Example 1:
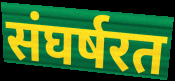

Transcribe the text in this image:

संघर्षरत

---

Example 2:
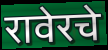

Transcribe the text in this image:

रावेरचे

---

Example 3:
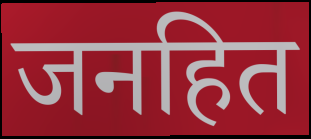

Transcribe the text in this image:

जनहित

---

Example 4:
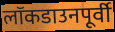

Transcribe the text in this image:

लॉकडाउनपूर्वी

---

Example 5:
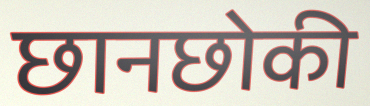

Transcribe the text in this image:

छानछोकी